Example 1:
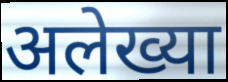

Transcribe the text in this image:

अलेख्या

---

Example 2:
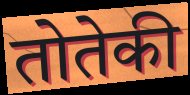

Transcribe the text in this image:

तोतेकी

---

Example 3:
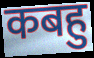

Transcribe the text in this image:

कबहु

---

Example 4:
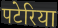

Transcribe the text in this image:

पटेरिया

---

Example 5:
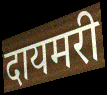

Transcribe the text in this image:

दायमरी